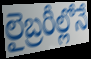
లైబ్రరీల్లోనే